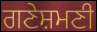
ਗਣੇਸ਼ਮਣੀ